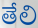
తేలి